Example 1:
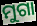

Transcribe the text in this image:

ମୁଗା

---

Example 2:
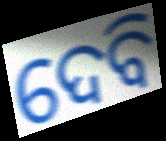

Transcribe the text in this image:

ଦେବି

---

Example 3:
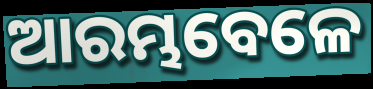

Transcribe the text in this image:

ଆରମ୍ଭବେଳେ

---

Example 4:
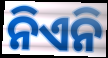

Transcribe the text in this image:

ନିଏନି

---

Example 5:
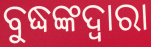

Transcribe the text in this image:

ବୁଦ୍ଧଙ୍କଦ୍ଵାରା